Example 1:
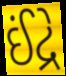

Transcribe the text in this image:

ઈંદ્રે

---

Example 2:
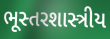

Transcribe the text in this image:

ભૂસ્તરશાસ્ત્રીય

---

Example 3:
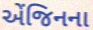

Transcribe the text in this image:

એંજિનના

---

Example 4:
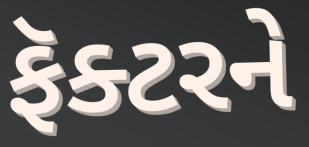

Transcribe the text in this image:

ફૅક્ટરને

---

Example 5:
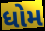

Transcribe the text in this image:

ધોમ